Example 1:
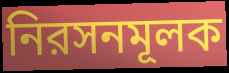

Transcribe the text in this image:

নিরসনমূলক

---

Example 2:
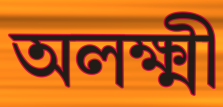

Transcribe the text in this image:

অলক্ষ্মী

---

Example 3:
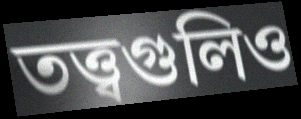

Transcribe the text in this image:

তত্ত্বগুলিও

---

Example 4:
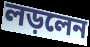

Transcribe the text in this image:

লড়লেন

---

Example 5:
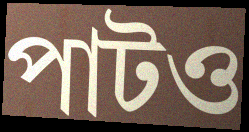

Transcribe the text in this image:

পাটও